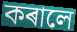
কৰালে